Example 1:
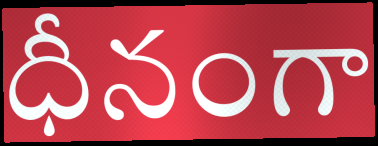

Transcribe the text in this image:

ధీనంగా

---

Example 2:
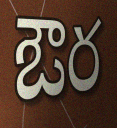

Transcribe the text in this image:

ఔర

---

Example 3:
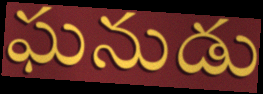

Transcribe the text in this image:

ఘనుడు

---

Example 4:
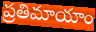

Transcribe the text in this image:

ప్రతిమాయాం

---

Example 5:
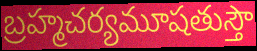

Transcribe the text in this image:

బ్రహ్మచర్యమూషతుస్తౌ